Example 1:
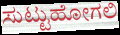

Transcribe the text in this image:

ಸುಟ್ಟುಹೋಗಲಿ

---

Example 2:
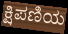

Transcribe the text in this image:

ಕ್ಷಿಪಣಿಯ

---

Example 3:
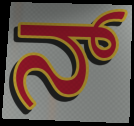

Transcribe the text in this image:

ನ್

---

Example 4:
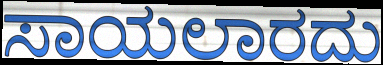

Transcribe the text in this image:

ಸಾಯಲಾರದು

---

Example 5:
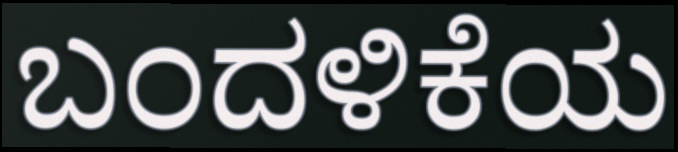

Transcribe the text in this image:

ಬಂದಳಿಕೆಯ